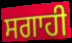
ਸਗਾਹੀ